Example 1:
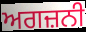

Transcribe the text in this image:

ਅਗਜ਼ਨੀ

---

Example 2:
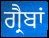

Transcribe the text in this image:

ਗ੍ਰੈਬਾਂ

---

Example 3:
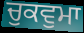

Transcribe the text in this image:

ਚੁਕਵੁਮਾ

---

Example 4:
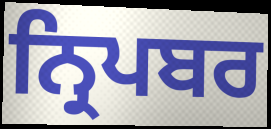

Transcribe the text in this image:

ਨ੍ਰਿਪਬਰ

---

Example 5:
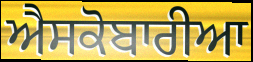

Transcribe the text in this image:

ਐਸਕੋਬਾਰੀਆ